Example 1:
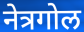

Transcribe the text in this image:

नेत्रगोल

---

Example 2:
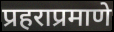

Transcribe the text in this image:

प्रहराप्रमाणे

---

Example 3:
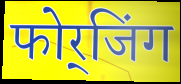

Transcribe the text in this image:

फोर्जिंग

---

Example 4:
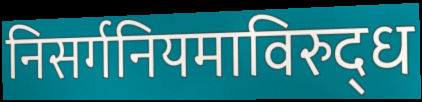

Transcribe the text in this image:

निसर्गनियमाविरुद्ध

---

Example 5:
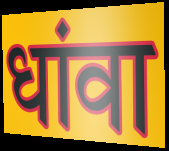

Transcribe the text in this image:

धांवा